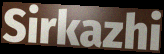
Sirkazhi